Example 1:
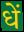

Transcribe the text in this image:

धें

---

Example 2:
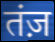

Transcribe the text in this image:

तंज़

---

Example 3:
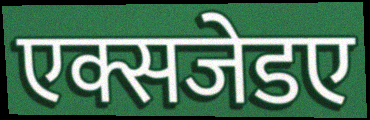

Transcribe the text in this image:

एक्सजेडए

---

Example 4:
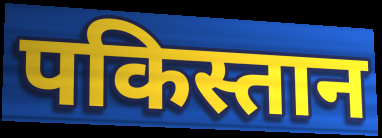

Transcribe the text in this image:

पकिस्तान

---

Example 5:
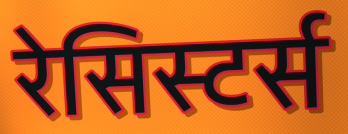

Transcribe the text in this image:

रेसिस्टर्स